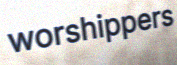
worshippers